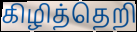
கிழித்தெறி